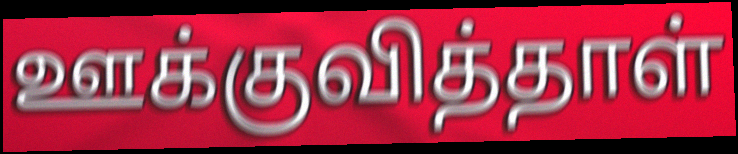
ஊக்குவித்தாள்